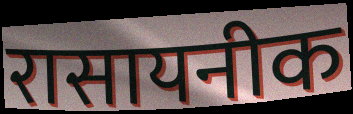
रासायनीक